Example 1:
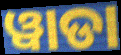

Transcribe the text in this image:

ୱାଡା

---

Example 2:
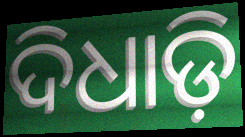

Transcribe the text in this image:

ଦିଧାଡ଼ି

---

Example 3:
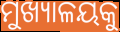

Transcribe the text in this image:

ମୁଖ୍ୟାଳୟକୁ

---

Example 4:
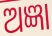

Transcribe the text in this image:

ଅଜ୍ଞା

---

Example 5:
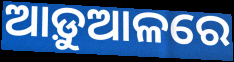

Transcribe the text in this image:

ଆଡ଼ୁଆଳରେ